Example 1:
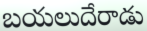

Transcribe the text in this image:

బయలుదేరాడు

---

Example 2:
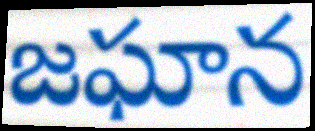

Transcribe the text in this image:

జఘాన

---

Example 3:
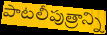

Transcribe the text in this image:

పాటలీపుత్రాన్ని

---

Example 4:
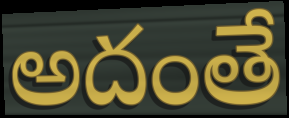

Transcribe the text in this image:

అదంతే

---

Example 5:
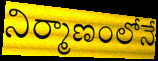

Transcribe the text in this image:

నిర్మాణంలోనే